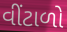
વીંટાળો